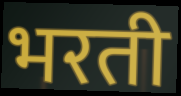
भरती